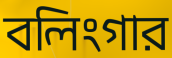
বলিংগার